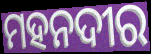
ମହନଦୀର